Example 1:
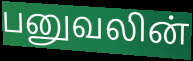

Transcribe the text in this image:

பனுவலின்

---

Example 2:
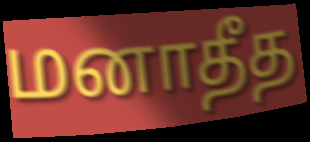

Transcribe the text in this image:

மனாதீத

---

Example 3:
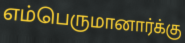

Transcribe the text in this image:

எம்பெருமானார்க்கு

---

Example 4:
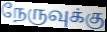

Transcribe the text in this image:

நேருவுக்கு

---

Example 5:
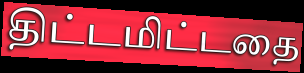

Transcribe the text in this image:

திட்டமிட்டதை